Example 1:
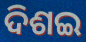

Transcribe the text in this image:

ଦିଶଇ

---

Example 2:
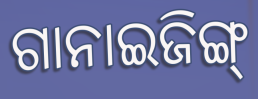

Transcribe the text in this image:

ଗାନାଇଜିଙ୍ଗ୍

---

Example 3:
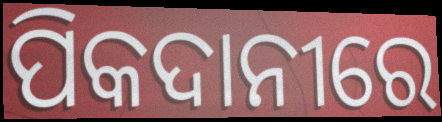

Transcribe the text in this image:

ପିକଦାନୀରେ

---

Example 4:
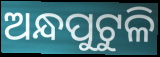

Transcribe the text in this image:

ଅନ୍ଧପୁଟୁଳି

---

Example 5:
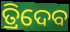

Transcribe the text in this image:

ତ୍ରିଦେବ